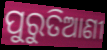
ପୁରୁତିଆଣୀ